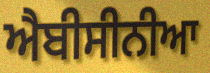
ਐਬੀਸੀਨੀਆ